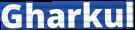
Gharkul